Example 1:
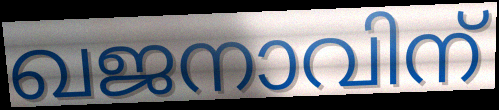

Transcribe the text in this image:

ഖജനാവിന്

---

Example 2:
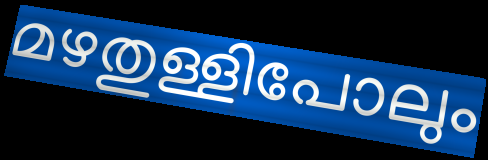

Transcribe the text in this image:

മഴതുള്ളിപോലും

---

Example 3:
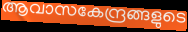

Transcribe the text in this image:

ആവാസകേന്ദ്രങ്ങളുടെ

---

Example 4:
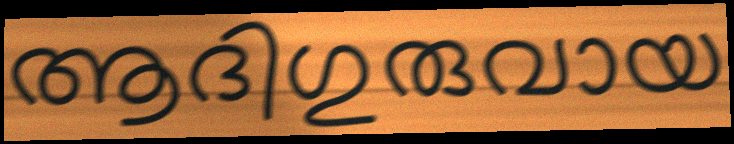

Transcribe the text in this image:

ആദിഗുരുവായ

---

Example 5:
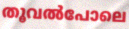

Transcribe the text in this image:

തൂവൽപോലെ